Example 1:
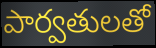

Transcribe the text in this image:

పార్వతులతో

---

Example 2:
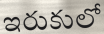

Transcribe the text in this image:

ఇరుకులో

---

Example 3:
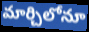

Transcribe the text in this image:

మార్చిలోనూ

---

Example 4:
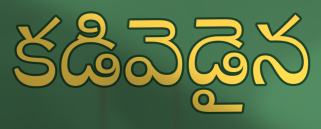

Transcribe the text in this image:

కడివెడైన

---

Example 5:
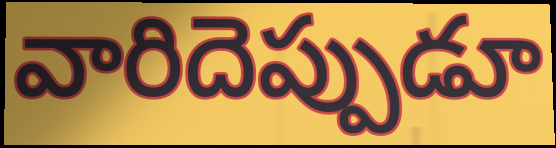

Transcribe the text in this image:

వారిదెప్పుడూ